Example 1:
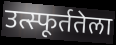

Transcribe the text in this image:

उत्स्फूर्ततेला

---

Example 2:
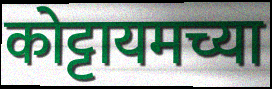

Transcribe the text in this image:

कोट्टायमच्या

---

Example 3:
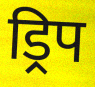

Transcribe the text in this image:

ड्रिप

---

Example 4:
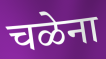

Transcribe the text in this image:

चळेना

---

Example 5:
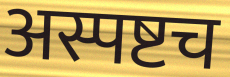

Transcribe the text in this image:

अस्पष्टच